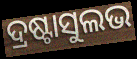
ଦ୍ରଷ୍ଟାସୁଲଭ